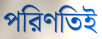
পরিণতিই